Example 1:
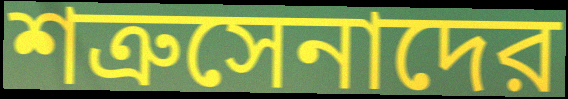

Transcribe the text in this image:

শত্রুসেনাদের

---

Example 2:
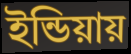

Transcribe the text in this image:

ইন্ডিয়ায়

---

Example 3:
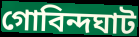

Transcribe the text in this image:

গোবিন্দঘাট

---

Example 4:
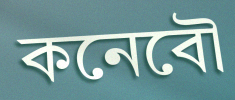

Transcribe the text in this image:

কনেবৌ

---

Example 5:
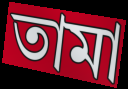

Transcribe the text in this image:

তামা